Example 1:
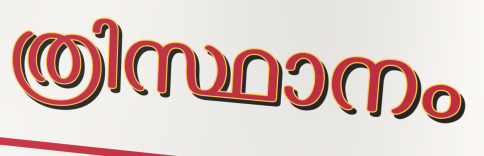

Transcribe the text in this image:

ത്രിസ്ഥാനം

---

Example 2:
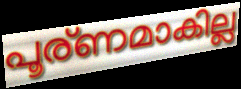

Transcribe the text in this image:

പൂര്ണമാകില്ല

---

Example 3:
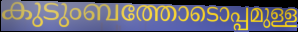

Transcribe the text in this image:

കുടുംബത്തോടൊപ്പമുള്ള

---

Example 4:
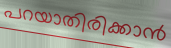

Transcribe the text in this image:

പറയാതിരിക്കാൻ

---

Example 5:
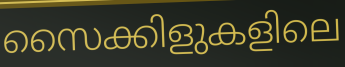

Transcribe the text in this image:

സൈക്കിളുകളിലെ